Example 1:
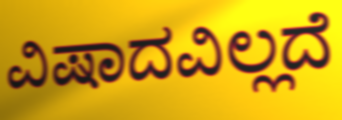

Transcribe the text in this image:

ವಿಷಾದವಿಲ್ಲದೆ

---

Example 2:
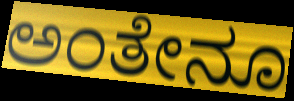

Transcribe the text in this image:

ಅಂತೇನೂ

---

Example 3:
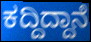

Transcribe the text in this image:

ಕದ್ದಿದ್ದಾನೆ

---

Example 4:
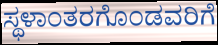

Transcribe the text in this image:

ಸ್ಥಳಾಂತರಗೊಂಡವರಿಗೆ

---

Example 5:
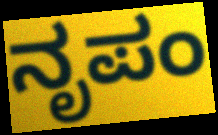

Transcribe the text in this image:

ನೃಪಂ